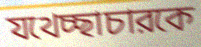
যথেচ্ছাচারকে